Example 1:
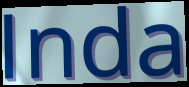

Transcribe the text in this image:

Inda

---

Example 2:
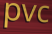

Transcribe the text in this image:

pvc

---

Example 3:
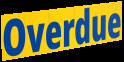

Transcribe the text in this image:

Overdue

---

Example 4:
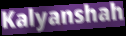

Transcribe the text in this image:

Kalyanshah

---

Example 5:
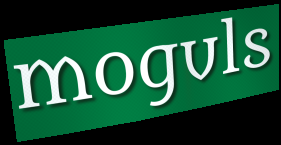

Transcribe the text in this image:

moguls